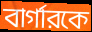
বার্গারকে